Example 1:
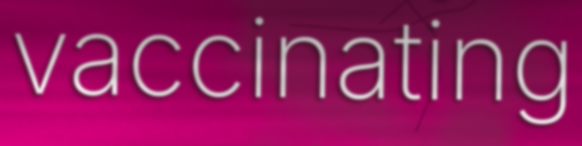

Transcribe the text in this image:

vaccinating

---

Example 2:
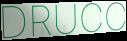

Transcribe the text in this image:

DRUCC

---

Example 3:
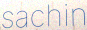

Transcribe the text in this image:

sachin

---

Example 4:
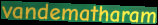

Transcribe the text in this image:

vandematharam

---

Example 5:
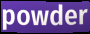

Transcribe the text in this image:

powder